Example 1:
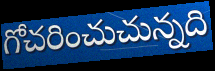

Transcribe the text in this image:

గోచరించుచున్నది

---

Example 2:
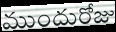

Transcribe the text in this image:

ముందురోజు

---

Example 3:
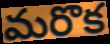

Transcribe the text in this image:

మరొక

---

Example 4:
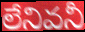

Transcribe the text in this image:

లేనివనీ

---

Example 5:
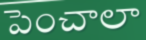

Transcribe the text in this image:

పెంచాలా